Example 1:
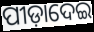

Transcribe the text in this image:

ପୀଡ଼ାଦେଇ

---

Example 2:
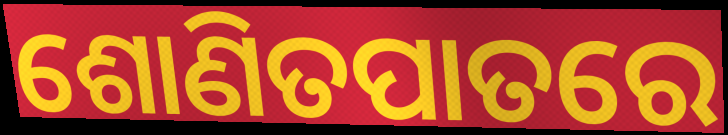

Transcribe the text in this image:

ଶୋଣିତପାତରେ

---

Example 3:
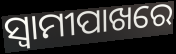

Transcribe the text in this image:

ସ୍ୱାମୀପାଖରେ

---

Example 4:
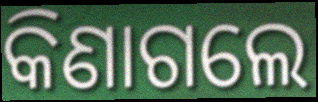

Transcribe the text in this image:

କିଣାଗଲେ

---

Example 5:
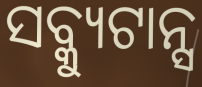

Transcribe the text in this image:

ସବ୍କ୍ୟୁଟାନ୍ସ